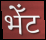
भेँट